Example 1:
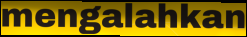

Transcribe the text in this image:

mengalahkan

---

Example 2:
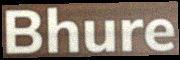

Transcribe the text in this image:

Bhure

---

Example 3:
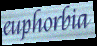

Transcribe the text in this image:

euphorbia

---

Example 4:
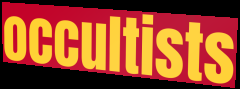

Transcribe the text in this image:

occultists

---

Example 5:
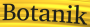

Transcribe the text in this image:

Botanik